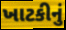
ખાટકીનું